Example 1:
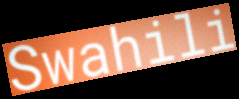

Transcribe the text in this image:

Swahili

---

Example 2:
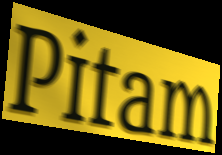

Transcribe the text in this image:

Pitam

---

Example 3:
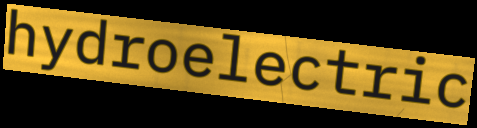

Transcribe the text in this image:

hydroelectric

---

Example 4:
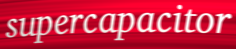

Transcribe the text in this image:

supercapacitor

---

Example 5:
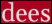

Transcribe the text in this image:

dees